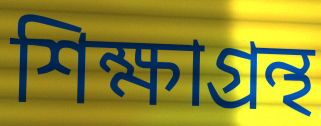
শিক্ষাগ্রন্থ